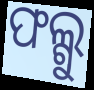
ଫଲ୍ଗୁ